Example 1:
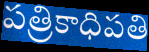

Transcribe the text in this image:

పత్రికాధిపతి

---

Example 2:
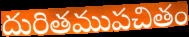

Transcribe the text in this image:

దురితముపచితం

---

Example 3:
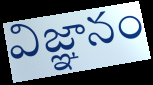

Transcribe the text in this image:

విజ్ఞానం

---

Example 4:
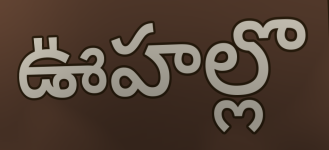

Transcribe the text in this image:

ఊహల్లొ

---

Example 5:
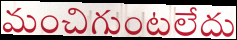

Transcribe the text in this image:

మంచిగుంటలేదు